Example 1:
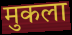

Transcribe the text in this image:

मुकला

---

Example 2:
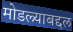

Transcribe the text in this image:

मोडल्याबद्दल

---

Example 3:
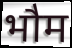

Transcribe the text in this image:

भौम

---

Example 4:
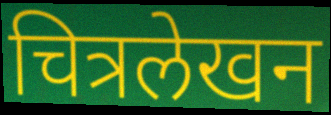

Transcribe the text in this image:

चित्रलेखन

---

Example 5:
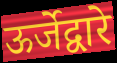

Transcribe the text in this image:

ऊर्जेद्वारे